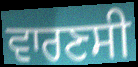
ਵਾਰਣਸੀ